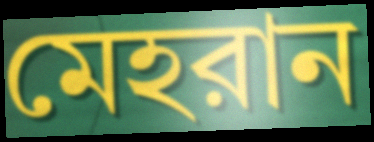
মেহরান